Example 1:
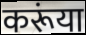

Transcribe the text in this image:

करूंया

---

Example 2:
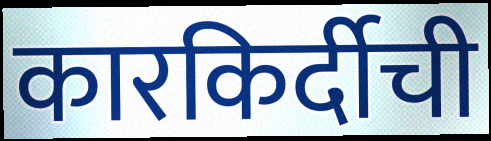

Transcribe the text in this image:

कारकिर्दीची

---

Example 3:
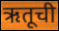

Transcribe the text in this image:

ॠतूची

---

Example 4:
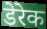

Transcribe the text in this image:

डेरेक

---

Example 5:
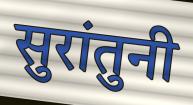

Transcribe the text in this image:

सुरांतुनी